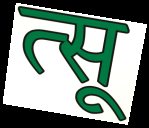
त्सू